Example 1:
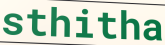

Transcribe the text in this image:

sthitha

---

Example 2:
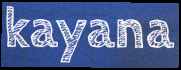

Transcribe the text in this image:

kayana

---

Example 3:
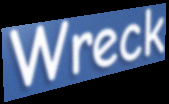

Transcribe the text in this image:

Wreck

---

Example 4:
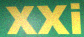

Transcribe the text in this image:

XXi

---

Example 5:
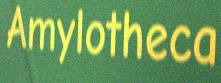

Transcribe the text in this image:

Amylotheca